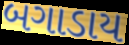
બગાડાય